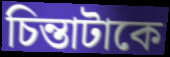
চিন্তাটাকে